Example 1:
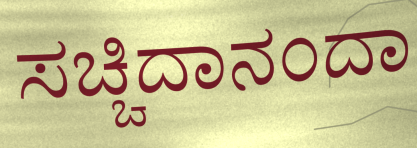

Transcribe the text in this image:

ಸಚ್ಚಿದಾನಂದಾ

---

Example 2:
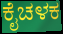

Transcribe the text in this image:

ಕೈಚಳಕ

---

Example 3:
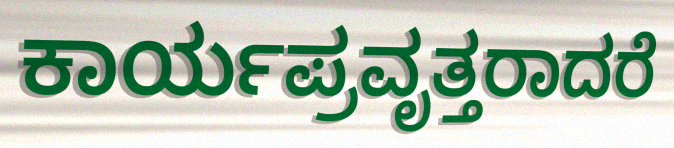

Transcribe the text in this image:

ಕಾರ್ಯಪ್ರವೃತ್ತರಾದರೆ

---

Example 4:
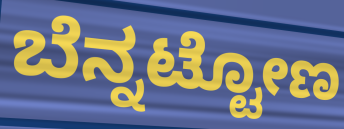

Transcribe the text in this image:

ಬೆನ್ನಟ್ಟೋಣ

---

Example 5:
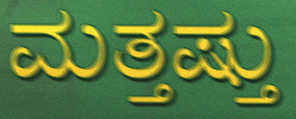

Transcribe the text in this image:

ಮತ್ತಷ್ತು